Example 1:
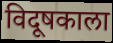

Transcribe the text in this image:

विदूषकाला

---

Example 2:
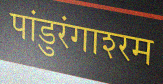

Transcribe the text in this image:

पांडुरंगाश्रम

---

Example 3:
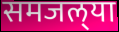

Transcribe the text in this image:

समजल्या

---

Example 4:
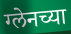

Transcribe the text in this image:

ग्लेनच्या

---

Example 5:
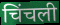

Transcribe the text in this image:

चिंचली